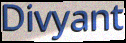
Divyant